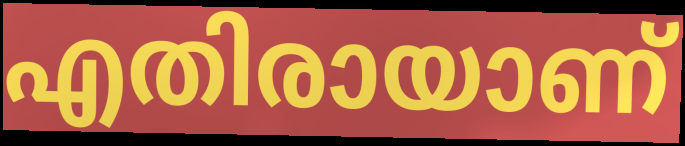
എതിരായാണ്